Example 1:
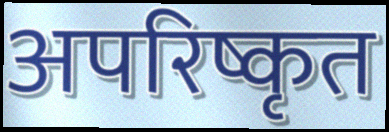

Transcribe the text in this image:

अपरिष्कृत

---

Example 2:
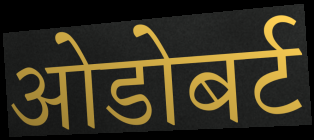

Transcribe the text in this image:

ओडोबर्ट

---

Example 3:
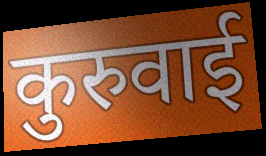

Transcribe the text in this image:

कुरुवाई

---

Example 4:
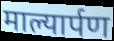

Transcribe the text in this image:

माल्यार्पण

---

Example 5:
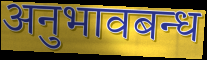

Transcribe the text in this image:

अनुभावबन्ध